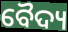
ବୈଦ୍ୟ